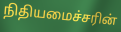
நிதியமைச்சரின்